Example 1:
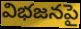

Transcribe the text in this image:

విభజనపై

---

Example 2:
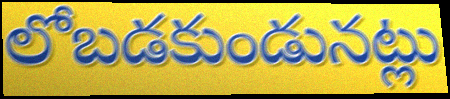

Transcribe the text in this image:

లోబడకుండునట్లు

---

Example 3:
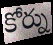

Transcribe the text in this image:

కోర్ను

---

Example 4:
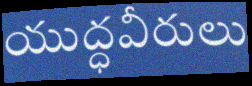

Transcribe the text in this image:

యుద్ధవీరులు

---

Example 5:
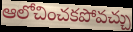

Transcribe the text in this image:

ఆలోచించకపోవచ్చు